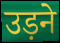
उड़ने